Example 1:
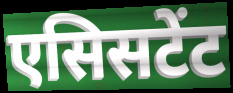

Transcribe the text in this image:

एसिसटेंट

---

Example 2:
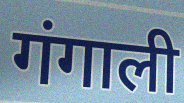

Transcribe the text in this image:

गंगाली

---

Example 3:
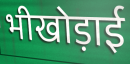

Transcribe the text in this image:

भीखोड़ाई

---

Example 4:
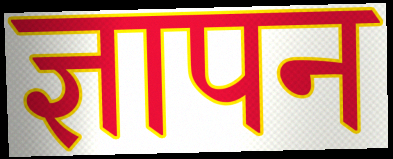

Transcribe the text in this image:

ज्ञापन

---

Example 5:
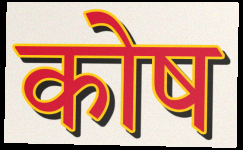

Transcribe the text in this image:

कोष